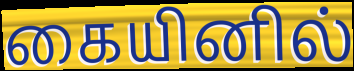
கையினில்